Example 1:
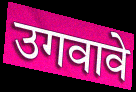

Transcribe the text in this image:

उगवावे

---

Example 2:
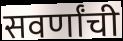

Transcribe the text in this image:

सवर्णांची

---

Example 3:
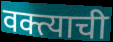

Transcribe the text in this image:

वक्त्याची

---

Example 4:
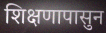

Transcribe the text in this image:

शिक्षणापासुन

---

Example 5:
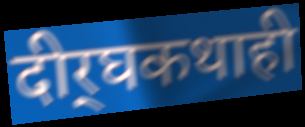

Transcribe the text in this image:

दीर्घकथाही